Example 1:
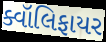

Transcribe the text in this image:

ક્વૉલિફાયર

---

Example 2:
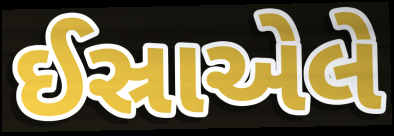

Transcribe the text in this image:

ઈસ્રાએલે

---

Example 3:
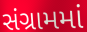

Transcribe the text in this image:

સંગ્રામમાં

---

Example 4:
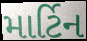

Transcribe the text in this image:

માર્ટિન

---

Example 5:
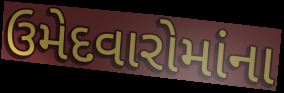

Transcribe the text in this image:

ઉમેદવારોમાંના